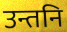
उन्तनि